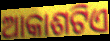
ଆକାଶଟିଏ